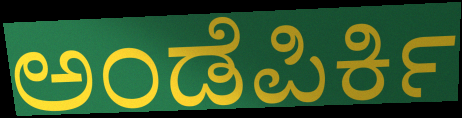
ಅಂಡೆಪಿರ್ಕಿ